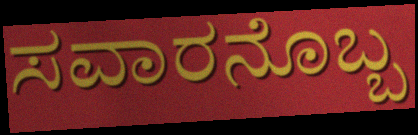
ಸವಾರನೊಬ್ಬ